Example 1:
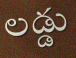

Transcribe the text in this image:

లడ్డు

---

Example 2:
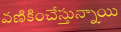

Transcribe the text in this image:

వణికించేస్తున్నాయి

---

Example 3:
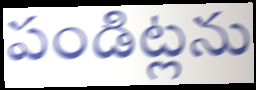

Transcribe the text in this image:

పండిట్లను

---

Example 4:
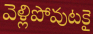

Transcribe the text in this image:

వెళ్లిపోవుటకై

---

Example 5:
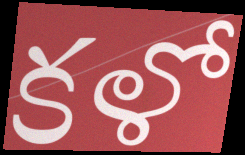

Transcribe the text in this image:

కళో